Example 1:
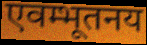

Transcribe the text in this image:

एवम्भूतनय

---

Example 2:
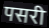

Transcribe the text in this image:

पसरी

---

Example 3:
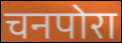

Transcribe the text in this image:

चनपोरा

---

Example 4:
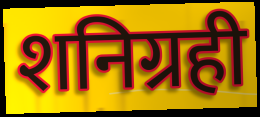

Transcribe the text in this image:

शनिग्रही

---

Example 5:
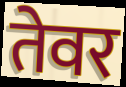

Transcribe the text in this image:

तेवर